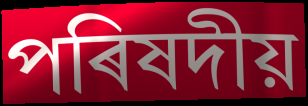
পৰিষদীয়